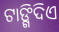
ଟାଙ୍ଗିଦିଏ